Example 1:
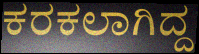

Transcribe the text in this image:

ಕರಕಲಾಗಿದ್ದ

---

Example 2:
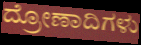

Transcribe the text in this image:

ದ್ರೋಣಾದಿಗಳು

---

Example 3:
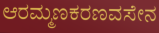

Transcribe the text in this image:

ಆರಮ್ಮಣಕರಣವಸೇನ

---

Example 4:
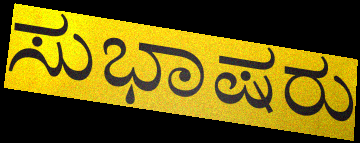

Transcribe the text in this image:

ಸುಭಾಷರು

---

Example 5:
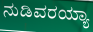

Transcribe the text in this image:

ನುಡಿವರಯ್ಯಾ